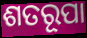
ଶତରୂପା